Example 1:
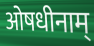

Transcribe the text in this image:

ओषधीनाम्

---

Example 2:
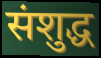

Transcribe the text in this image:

संशुद्ध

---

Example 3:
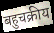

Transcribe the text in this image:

बहुचक्रीय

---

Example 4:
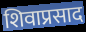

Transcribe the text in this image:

शिवाप्रसाद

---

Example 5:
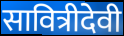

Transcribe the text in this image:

सावित्रीदेवी